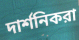
দার্শনিকরা